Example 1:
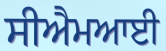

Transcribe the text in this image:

ਸੀਐਮਆਈ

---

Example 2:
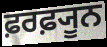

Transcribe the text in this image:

ਫ਼ਰਫ਼੍ਯੂਨ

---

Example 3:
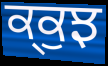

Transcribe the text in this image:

ਕ੍ਕੁਝ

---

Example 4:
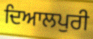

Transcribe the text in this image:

ਦਿਆਲਪੁਰੀ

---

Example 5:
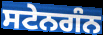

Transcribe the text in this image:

ਸਟੇਨਗੰਨ